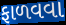
ફાળવવા